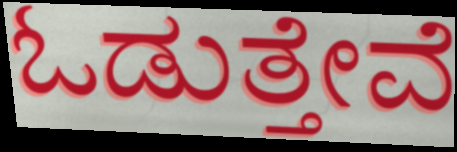
ಓಡುತ್ತೇವೆ